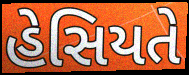
હેસિયતે